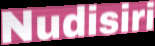
Nudisiri